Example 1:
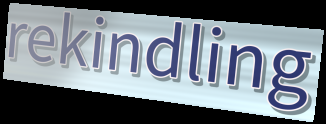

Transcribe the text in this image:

rekindling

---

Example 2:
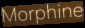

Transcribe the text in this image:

Morphine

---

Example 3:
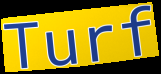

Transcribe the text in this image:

Turf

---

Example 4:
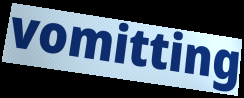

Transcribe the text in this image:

vomitting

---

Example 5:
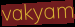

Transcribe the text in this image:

vakyam